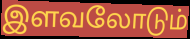
இளவலோடும்